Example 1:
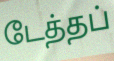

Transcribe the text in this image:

டேத்தப்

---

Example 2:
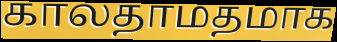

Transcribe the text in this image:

காலதாமதமாக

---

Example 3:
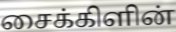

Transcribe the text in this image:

சைக்கிளின்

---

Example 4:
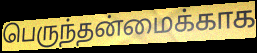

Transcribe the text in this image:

பெருந்தன்மைக்காக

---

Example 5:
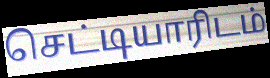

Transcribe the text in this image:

செட்டியாரிடம்